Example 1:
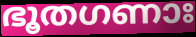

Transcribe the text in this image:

ഭൂതഗണാഃ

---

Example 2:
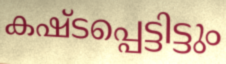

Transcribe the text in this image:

കഷ്ടപ്പെട്ടിട്ടും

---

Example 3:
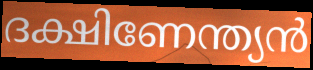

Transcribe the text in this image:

ദക്ഷിണേന്ത്യൻ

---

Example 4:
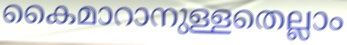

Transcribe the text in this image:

കൈമാറാനുള്ളതെല്ലാം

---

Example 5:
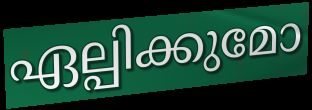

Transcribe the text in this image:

ഏല്പിക്കുമോ